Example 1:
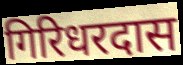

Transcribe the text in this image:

गिरिधरदास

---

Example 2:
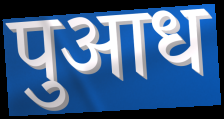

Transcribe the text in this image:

पुआध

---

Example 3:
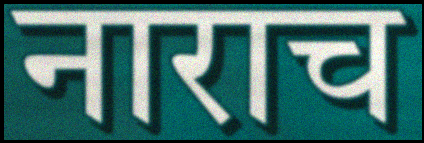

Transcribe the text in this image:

नाराच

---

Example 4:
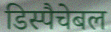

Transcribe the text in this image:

डिस्पैचेबल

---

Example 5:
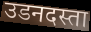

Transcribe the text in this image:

उडनदस्ता